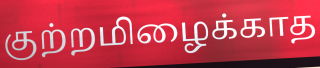
குற்றமிழைக்காத